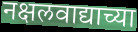
नक्षलवाद्याच्या